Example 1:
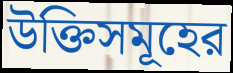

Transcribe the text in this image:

উক্তিসমূহের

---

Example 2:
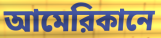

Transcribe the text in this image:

আমেরিকানে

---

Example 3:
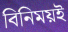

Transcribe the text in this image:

বিনিময়ই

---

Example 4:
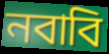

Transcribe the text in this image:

নবাবি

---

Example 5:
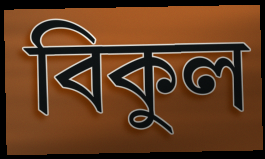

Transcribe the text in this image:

বিকুল